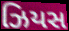
ઝિયસ